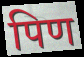
पिण